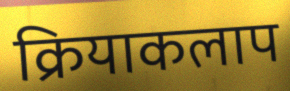
क्रियाकलाप